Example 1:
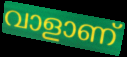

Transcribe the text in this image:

വാളാണ്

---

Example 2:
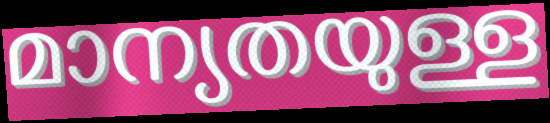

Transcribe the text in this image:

മാന്യതയുള്ള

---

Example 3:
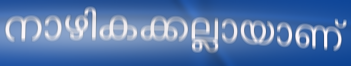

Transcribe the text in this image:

നാഴികക്കല്ലായാണ്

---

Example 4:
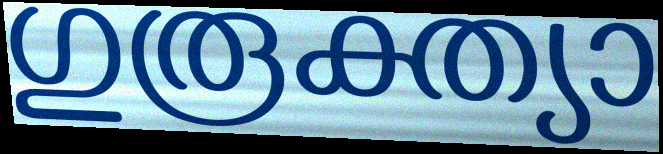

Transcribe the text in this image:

ഗുരൂക്ത്യാ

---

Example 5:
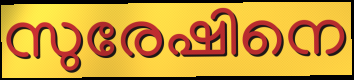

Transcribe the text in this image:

സുരേഷിനെ